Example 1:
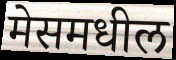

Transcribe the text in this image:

मेसमधील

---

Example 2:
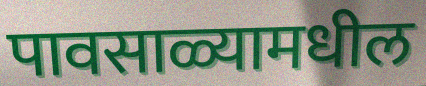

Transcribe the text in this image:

पावसाळ्यामधील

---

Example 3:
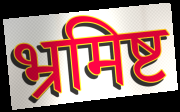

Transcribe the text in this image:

भ्रमिष्ट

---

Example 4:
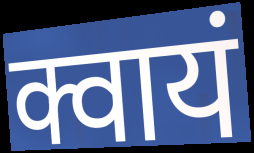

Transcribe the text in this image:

क्वायं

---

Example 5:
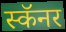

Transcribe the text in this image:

स्कॅनर